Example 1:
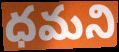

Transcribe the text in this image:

ధమని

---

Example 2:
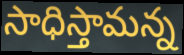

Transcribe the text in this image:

సాధిస్తామన్న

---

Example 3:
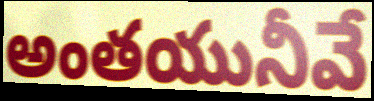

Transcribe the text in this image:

అంతయునీవే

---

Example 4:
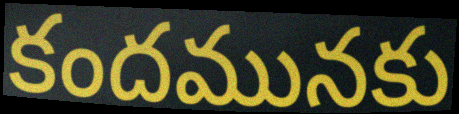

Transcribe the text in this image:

కందమునకు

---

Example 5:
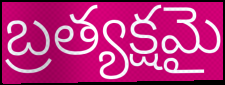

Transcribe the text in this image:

బ్రత్యక్షమై